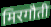
मिरगौती